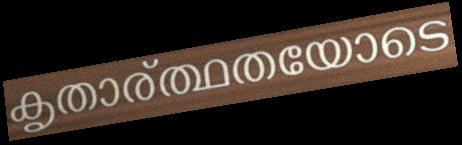
കൃതാര്ത്ഥതയോടെ